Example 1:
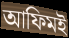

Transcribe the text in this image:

আফিমই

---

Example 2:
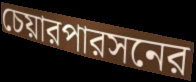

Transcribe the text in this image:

চেয়ারপারসনের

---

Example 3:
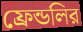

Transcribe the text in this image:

ফ্রেন্ডলির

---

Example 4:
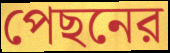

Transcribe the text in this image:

পেছনের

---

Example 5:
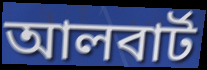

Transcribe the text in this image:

আলবার্ট